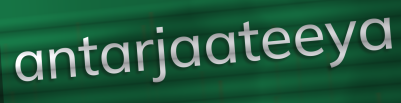
antarjaateeya